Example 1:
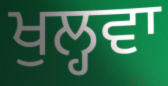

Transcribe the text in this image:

ਖੁਲ੍ਹਵਾ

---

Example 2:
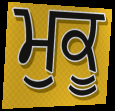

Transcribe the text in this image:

ਮੁਕੂ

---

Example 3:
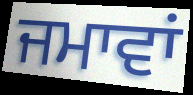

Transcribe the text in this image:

ਜਮਾਵਾਂ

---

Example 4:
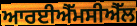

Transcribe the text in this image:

ਆਰਈਐੱਮਸੀਐੱਲ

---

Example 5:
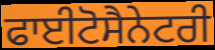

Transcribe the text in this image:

ਫਾਈਟੋਸੈਨੇਟਰੀ